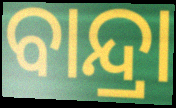
ବାନ୍ଦ୍ରା